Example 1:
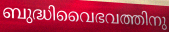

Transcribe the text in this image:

ബുദ്ധിവൈഭവത്തിനു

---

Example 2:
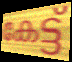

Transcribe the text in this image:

കേട്ട്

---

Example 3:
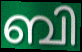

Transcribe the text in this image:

ബി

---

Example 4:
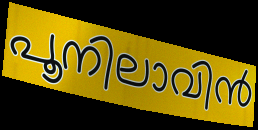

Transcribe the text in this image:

പൂനിലാവിൻ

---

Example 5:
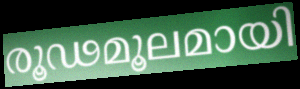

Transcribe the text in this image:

രൂഢമൂലമായി